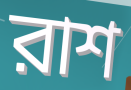
রাশ